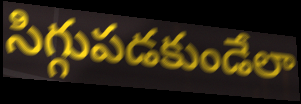
సిగ్గుపడకుండేలా